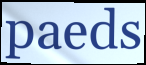
paeds